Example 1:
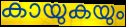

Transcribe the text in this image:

കായുകയും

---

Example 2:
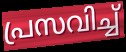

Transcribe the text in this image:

പ്രസവിച്ച്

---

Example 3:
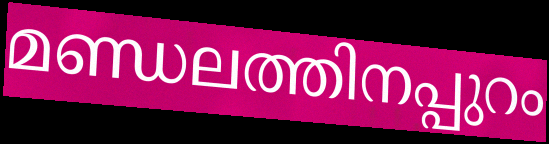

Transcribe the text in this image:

മണ്ഡലത്തിനപ്പുറം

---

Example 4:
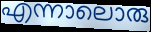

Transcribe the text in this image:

എന്നാലൊരു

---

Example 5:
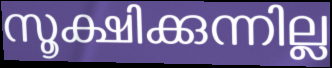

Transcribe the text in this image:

സൂക്ഷിക്കുന്നില്ല